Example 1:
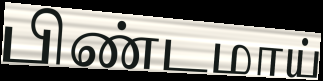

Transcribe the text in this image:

பிண்டமாய்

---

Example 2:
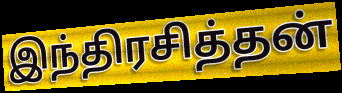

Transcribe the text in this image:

இந்திரசித்தன்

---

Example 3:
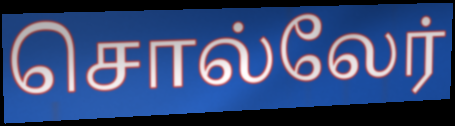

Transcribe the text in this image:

சொல்லேர்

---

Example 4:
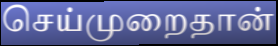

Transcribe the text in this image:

செய்முறைதான்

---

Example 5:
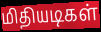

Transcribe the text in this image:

மிதியடிகள்